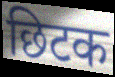
छिटक